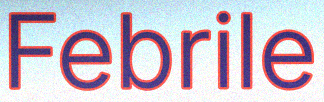
Febrile